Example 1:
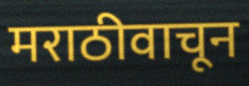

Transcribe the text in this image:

मराठीवाचून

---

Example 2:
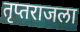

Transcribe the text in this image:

तृप्तराजला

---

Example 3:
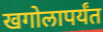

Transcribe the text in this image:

खगोलापर्यंत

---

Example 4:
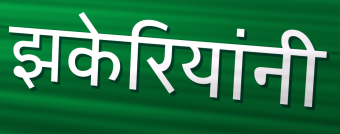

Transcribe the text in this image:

झकेरियांनी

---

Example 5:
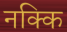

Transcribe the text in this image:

नक्कि